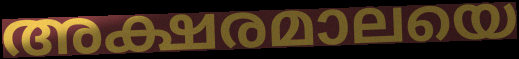
അക്ഷരമാലയെ